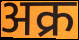
अक्र